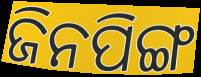
ଜିନପିଙ୍ଗ